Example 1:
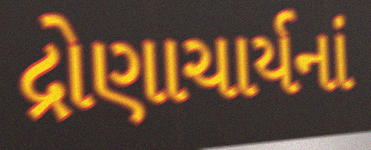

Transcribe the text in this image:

દ્રોણાચાર્યનાં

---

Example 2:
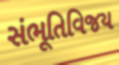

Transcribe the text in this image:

સંભૂતિવિજય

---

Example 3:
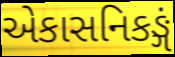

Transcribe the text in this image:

એકાસનિકઙ્ગં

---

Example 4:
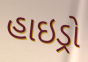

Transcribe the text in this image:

હાઇડ્રો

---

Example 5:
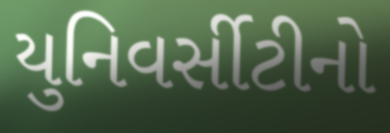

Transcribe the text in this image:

યુનિવર્સીટીનો